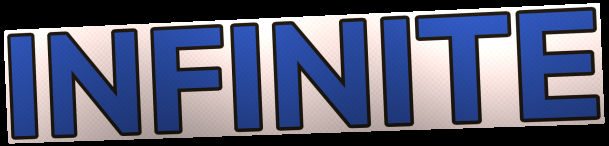
INFINITE